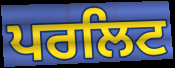
ਪਰਲਿਟ